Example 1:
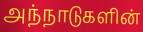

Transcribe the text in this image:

அந்நாடுகளின்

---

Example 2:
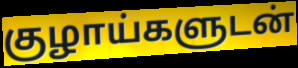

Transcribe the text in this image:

குழாய்களுடன்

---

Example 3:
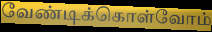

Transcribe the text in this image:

வேண்டிக்கொள்வோம்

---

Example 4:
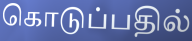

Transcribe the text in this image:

கொடுப்பதில்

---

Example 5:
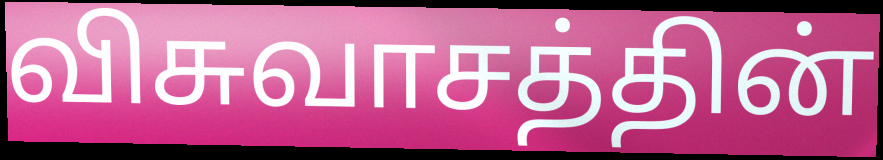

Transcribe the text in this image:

விசுவாசத்தின்